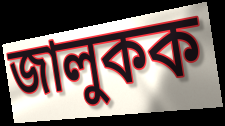
জালুকক